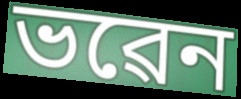
ভৱেন